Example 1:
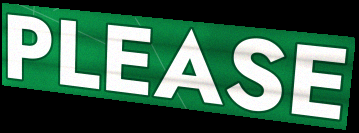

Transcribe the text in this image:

PLEASE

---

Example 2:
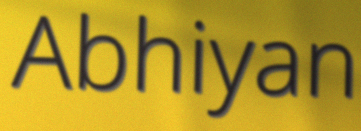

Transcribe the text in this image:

Abhiyan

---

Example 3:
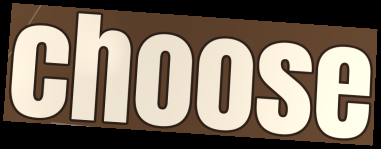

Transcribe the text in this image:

choose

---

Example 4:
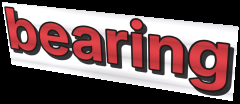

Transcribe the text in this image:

bearing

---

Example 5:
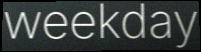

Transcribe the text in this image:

weekday